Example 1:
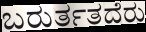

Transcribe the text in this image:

ಬರುರ್ತತದೆರು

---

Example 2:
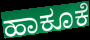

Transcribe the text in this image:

ಹಾಕೂಕೆ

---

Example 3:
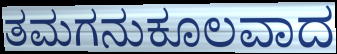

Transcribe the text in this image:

ತಮಗನುಕೂಲವಾದ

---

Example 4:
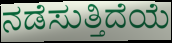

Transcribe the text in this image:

ನಡೆಸುತ್ತಿದೆಯೆ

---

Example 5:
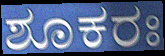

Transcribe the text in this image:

ಶೂಕರಃ